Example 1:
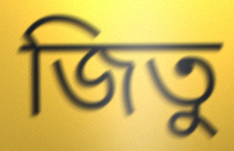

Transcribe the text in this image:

জিতু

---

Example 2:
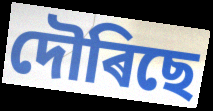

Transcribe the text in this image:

দৌৰিছে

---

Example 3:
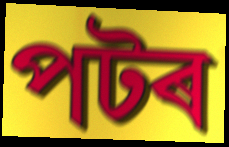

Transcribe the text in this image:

পটৰ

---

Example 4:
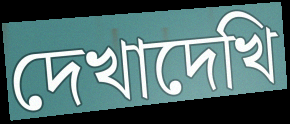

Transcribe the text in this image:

দেখাদেখি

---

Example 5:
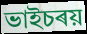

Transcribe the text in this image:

ভাইচৰয়